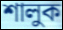
শালুক